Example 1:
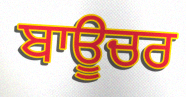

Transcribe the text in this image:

ਬਾਊਚਰ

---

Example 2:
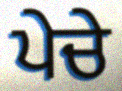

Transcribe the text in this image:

ਪੇਚੇ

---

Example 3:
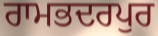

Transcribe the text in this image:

ਰਾਮਭਦਰਪੁਰ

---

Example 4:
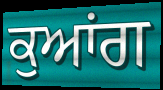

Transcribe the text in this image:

ਕੁਆਂਗ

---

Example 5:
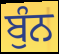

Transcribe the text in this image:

ਬੁੰਨ